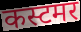
कस्टमर